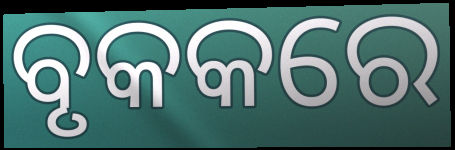
ବୃକକରେ